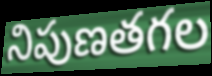
నిపుణతగల